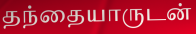
தந்தையாருடன்